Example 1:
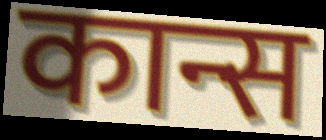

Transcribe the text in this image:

कान्‍स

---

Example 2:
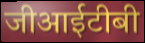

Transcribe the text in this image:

जीआईटीबी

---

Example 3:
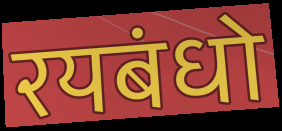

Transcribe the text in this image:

रयबंधो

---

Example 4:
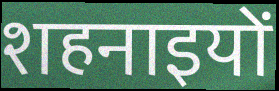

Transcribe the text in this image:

शहनाइयों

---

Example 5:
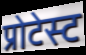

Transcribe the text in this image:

प्रोटेस्ट